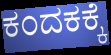
ಕಂದಕಕ್ಕೆ